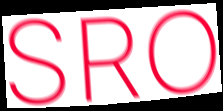
SRO